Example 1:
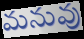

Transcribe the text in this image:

మనువు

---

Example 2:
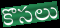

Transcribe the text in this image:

కొసలు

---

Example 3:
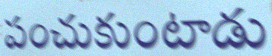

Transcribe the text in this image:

పంచుకుంటాడు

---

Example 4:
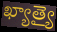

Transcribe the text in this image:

ఖ్యాత్యై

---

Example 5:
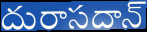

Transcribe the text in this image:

దురాసదాన్